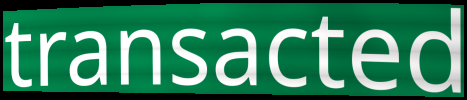
transacted